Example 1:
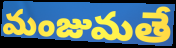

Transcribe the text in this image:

మంజుమతే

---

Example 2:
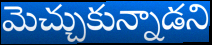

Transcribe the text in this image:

మెచ్చుకున్నాడని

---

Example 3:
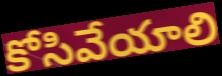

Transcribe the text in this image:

కోసివేయాలి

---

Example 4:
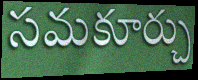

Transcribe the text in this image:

సమకూర్చు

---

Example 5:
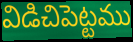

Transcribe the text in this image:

విడిచిపెట్టము